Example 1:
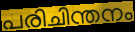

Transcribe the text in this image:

പരിചിന്തനം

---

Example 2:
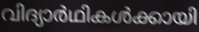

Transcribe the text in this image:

വിദ്യാർഥികൾക്കായി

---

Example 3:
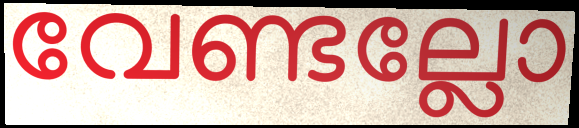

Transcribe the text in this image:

വേണ്ടല്ലോ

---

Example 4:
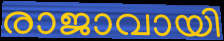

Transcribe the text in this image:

രാജാവായി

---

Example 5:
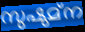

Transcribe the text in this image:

സുഷുമ്ന